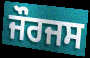
ਜੌਰਜਸ